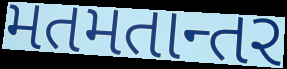
મતમતાન્તર